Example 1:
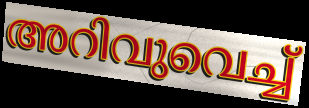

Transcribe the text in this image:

അറിവുവെച്ച്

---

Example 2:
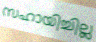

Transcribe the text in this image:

സഹായിച്ചില്ല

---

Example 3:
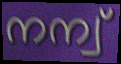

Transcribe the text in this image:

നന്വ്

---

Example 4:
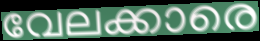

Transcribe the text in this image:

വേലക്കാരെ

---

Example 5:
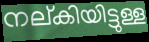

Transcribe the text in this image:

നല്കിയിട്ടുള്ള